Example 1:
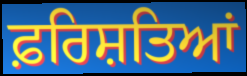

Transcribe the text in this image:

ਫ਼ਰਿਸ਼ਤਿਆਂ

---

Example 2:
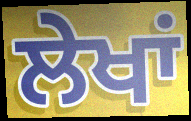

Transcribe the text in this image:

ਲੇਖਾਂ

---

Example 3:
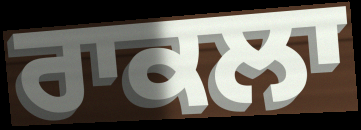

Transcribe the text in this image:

ਰਾਕਲਾ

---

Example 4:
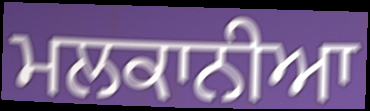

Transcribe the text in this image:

ਮਲਕਾਨੀਆ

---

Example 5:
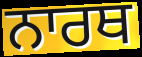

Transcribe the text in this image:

ਨਾਰਥ